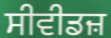
ਸੀਵੀਡਜ਼